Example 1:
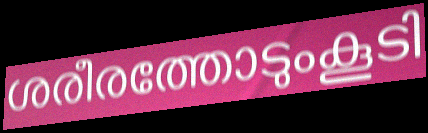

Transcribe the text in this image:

ശരീരത്തോടുംകൂടി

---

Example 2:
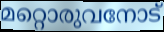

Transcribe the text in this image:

മറ്റൊരുവനോട്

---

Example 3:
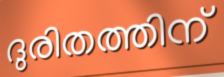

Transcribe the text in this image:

ദുരിതത്തിന്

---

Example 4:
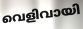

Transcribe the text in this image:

വെളിവായി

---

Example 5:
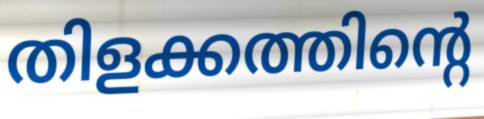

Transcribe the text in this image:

തിളക്കത്തിന്റെ